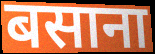
बसाना